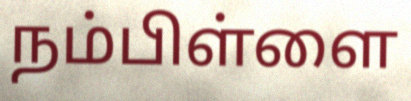
நம்பிள்ளை